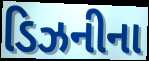
ડિઝનીના